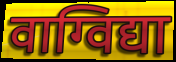
वाग्विद्या